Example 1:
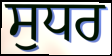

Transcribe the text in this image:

ਸੁਧਰ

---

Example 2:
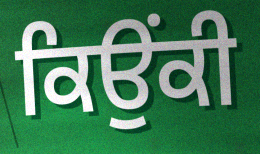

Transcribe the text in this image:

ਕਿਉਂਕੀ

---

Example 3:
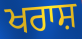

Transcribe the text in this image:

ਖਰਾਸ਼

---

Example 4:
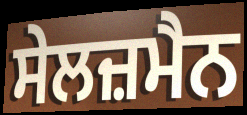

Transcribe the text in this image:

ਸੇਲਜ਼ਮੈਨ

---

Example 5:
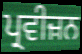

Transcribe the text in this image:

ਪ੍ਰਵੀਜ਼ਨ